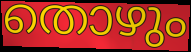
തൊഴും